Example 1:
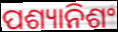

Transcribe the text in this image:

ପଶ୍ୟାନିଶଂ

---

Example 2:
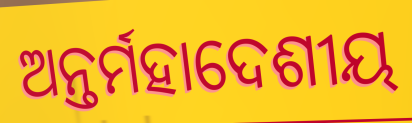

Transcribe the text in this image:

ଅନ୍ତର୍ମହାଦେଶୀୟ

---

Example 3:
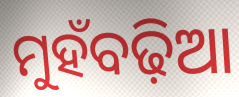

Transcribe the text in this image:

ମୁହଁବଢ଼ିଆ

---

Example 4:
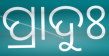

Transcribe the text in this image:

ପ୍ରାଦୁଃ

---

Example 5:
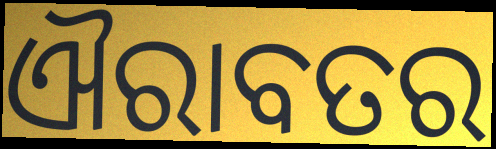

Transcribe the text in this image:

ଐରାବତର